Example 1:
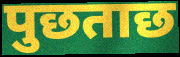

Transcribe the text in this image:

पुछताछ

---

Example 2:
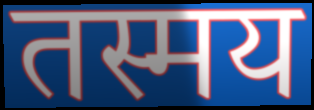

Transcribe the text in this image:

तस्मय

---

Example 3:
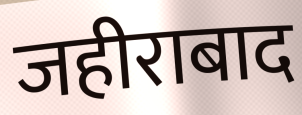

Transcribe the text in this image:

जहीराबाद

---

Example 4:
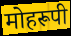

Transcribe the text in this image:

मोहरूपी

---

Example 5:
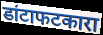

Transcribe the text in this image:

डांटाफटकारा